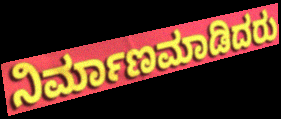
ನಿರ್ಮಾಣಮಾಡಿದರು